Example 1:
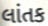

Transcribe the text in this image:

લાંતક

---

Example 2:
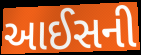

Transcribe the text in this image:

આઈસની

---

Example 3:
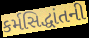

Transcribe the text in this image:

કર્મસિદ્ધાંતની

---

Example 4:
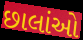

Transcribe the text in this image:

છાલાંઓ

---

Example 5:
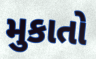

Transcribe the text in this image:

મુકાતો